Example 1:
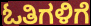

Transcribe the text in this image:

ಓತಿಗಳಿಗೆ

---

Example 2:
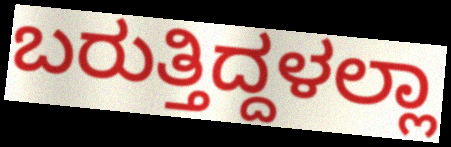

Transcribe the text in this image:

ಬರುತ್ತಿದ್ದಳಲ್ಲಾ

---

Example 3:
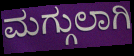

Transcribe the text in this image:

ಮಗ್ಗುಲಾಗಿ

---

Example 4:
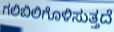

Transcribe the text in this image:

ಗಲಿಬಿಲಿಗೊಳಿಸುತ್ತದೆ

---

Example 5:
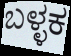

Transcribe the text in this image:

ಬಳ್ಳಕ